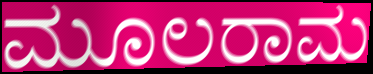
ಮೂಲರಾಮ